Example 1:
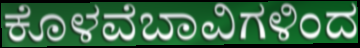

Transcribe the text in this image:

ಕೊಳವೆಬಾವಿಗಳಿಂದ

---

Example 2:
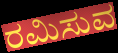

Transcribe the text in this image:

ರಮಿಸುವ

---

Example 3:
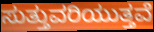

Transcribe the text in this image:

ಸುತ್ತುವರಿಯುತ್ತವೆ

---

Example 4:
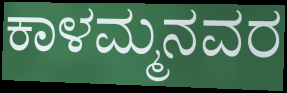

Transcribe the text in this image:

ಕಾಳಮ್ಮನವರ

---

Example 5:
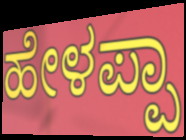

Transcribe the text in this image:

ಹೇಳಪ್ಪಾ